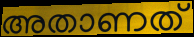
അതാണത്